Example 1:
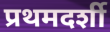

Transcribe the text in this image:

प्रथमदर्शी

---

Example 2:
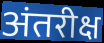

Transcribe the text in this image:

अंतरीक्ष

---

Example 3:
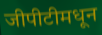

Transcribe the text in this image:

जीपीटीमधून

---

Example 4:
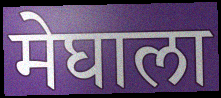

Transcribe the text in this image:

मेघाला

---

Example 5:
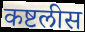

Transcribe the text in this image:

कष्टलीस